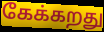
கேக்கறது